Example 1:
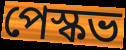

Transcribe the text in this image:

পেস্কভ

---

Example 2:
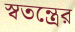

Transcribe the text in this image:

স্বতন্ত্রের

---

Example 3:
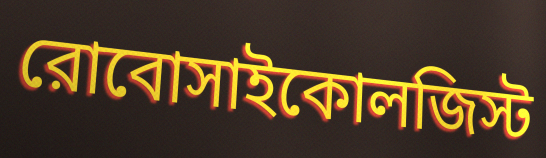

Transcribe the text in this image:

রোবোসাইকোলজিস্ট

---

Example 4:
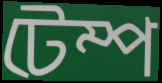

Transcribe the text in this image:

টেম্প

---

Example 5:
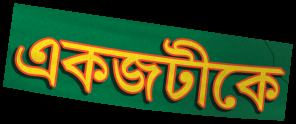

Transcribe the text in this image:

একজটীকে